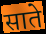
साते